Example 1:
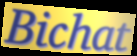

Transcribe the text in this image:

Bichat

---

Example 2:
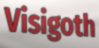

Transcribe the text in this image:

Visigoth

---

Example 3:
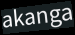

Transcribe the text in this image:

akanga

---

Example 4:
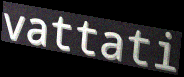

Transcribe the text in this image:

vattati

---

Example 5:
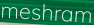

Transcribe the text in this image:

meshram